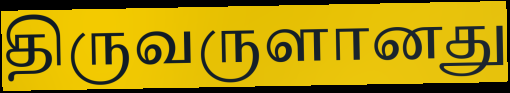
திருவருளானது